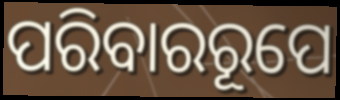
ପରିବାରରୂପେ